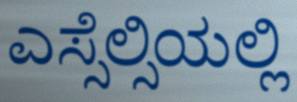
ಎಸ್ಸೆಲ್ಸಿಯಲ್ಲಿ